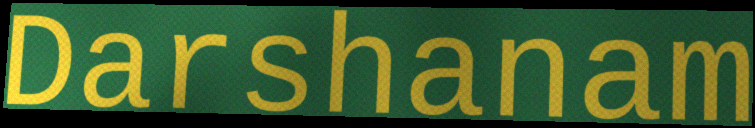
Darshanam